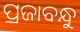
ପ୍ରଜାବନ୍ଧୁ